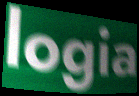
logia